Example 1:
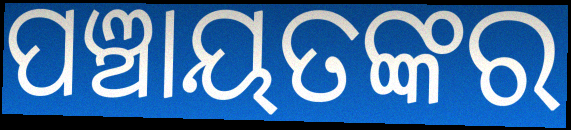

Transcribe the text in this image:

ପଞ୍ଚାୟତଙ୍କର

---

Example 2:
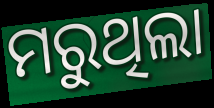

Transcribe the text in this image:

ମରୁଥିଲା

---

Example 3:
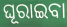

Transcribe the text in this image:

ଘୂରାଇବା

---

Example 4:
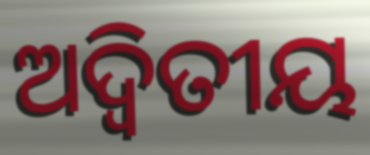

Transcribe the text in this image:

ଅଦ୍ବିତୀୟ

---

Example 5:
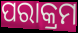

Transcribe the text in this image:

ପରାକ୍ରମ